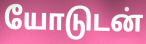
யோடுடன்